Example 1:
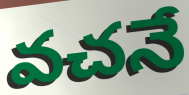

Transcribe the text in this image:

వచనే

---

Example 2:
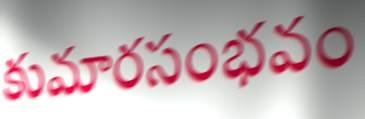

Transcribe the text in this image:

కుమారసంభవం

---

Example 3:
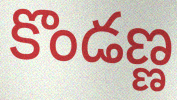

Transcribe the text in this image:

కొండణ్ణ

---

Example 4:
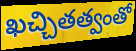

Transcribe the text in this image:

ఖచ్చితత్వంతో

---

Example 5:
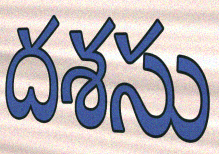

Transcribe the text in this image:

దశసు